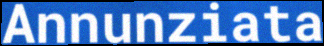
Annunziata